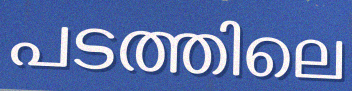
പടത്തിലെ